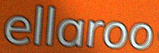
ellaroo